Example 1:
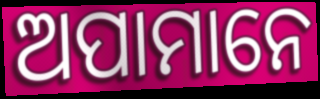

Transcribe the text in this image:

ଅପାମାନେ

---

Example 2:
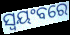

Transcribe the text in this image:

ସ୍ଵୟଂବରେ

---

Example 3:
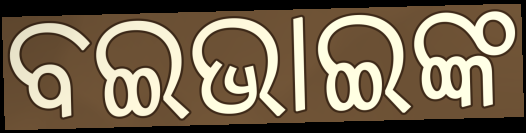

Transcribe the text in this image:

ବଇଭାଇଙ୍କ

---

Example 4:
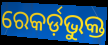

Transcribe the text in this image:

ରେକର୍ଡ଼ଭୁକ୍ତ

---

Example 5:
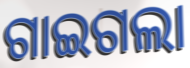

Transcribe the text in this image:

ଗାଇଗଲା